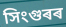
সিংগুৰৰ